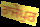
ਰਾਜੇਪੁਰ